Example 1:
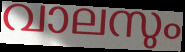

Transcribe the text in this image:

വാലസും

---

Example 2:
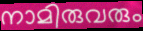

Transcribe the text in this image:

നാമിരുവരും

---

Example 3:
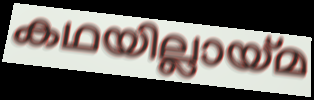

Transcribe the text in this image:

കഥയില്ലായ്മ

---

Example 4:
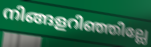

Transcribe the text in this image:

നിങ്ങളറിഞ്ഞില്ലേ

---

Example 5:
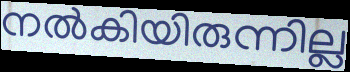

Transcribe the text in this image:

നൽകിയിരുന്നില്ല